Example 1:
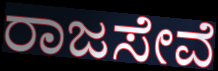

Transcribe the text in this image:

ರಾಜಸೇವೆ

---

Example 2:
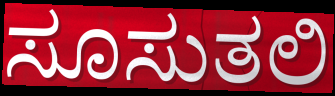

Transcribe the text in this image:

ಸೂಸುತಲಿ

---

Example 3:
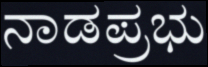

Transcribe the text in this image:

ನಾಡಪ್ರಭು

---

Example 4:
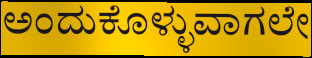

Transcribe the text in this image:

ಅಂದುಕೊಳ್ಳುವಾಗಲೇ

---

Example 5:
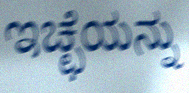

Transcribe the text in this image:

ಇಚ್ಛೆಯನ್ನು